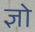
ज्ञो